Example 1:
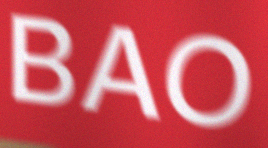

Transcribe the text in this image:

BAO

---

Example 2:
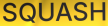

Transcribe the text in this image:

SQUASH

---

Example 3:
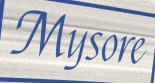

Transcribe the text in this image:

Mysore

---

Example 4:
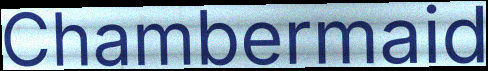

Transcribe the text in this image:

Chambermaid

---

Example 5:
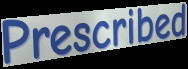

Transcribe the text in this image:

Prescribed